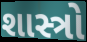
શાસ્ત્રો